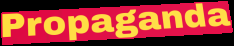
Propaganda